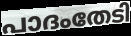
പാദംതേടി